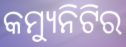
କମ୍ୟୁନିଟିର